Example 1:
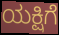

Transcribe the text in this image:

ಯಕ್ಷಿಗೆ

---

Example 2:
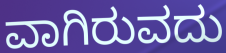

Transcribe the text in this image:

ವಾಗಿರುವದು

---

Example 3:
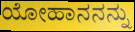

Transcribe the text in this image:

ಯೋಹಾನನನ್ನು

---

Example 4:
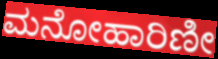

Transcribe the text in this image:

ಮನೋಹಾರಿಣೀ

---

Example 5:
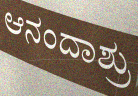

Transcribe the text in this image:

ಆನಂದಾಶ್ರು